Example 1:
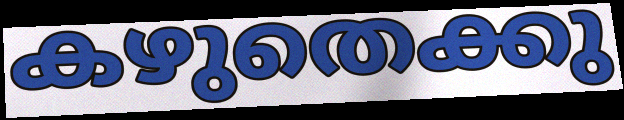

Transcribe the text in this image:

കഴുതെക്കു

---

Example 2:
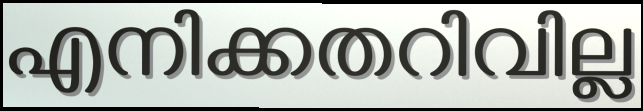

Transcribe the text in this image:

എനിക്കതറിവില്ല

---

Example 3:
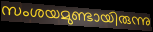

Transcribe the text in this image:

സംശയമുണ്ടായിരുന്നു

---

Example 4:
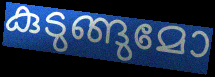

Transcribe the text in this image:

കുടുങ്ങുമോ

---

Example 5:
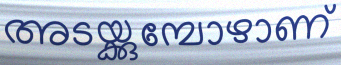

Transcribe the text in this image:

അടയ്ക്കുമ്പോഴാണ്